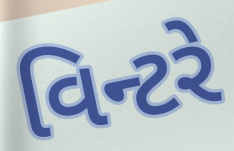
વિન્ટરે